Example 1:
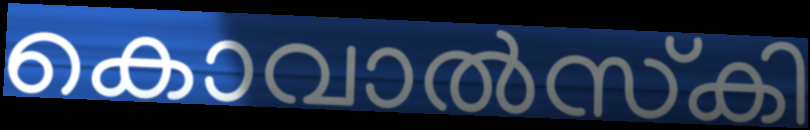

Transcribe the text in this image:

കൊവാൽസ്‌കി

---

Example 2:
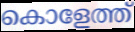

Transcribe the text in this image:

കൊളേത്ത്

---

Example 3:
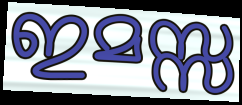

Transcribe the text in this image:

ഇമസ്സ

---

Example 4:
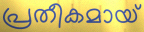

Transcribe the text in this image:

പ്രതീകമായ്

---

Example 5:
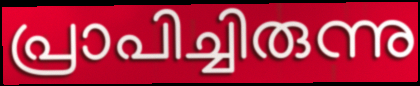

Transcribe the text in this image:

പ്രാപിച്ചിരുന്നു